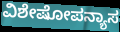
ವಿಶೇಷೋಪನ್ಯಾಸ